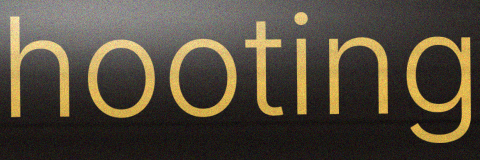
hooting